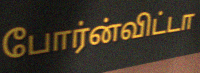
போர்ன்விட்டா